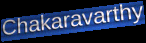
Chakaravarthy